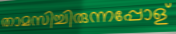
താമസിച്ചിരുന്നപ്പോള്